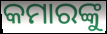
କମାରଙ୍କୁ